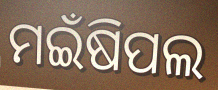
ମଇଁଷିପଲ